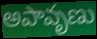
అపావృణు